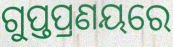
ଗୁପ୍ତପ୍ରଣୟରେ